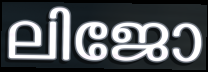
ലിജോ